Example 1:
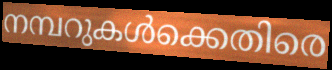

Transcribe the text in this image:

നമ്പറുകൾക്കെതിരെ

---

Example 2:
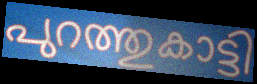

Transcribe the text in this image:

പുറത്തുകാട്ടി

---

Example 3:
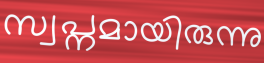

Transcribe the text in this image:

സ്വപ്നമായിരുന്നു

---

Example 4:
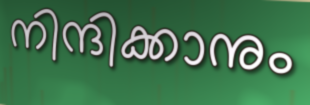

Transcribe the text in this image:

നിന്ദിക്കാനും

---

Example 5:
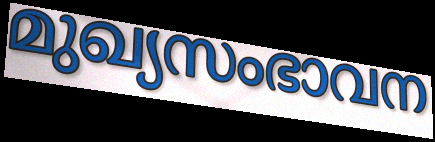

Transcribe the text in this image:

മുഖ്യസംഭാവന